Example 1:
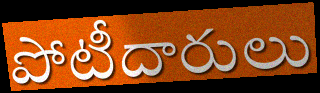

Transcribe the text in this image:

పోటీదారులు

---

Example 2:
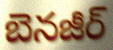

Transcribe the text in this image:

బెనజీర్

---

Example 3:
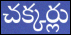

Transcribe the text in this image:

చక్కర్లు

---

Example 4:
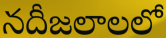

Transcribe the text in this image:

నదీజలాలలో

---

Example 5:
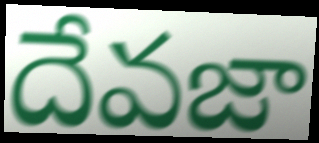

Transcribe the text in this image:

దేవజా